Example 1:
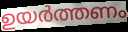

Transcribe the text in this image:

ഉയർത്തണം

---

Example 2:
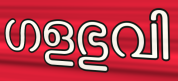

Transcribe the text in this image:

ഗളഭുവി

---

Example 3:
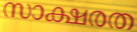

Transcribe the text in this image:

സാക്ഷരത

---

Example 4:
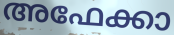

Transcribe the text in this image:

അഫേക്കാ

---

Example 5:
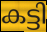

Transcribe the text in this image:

കട്ടി